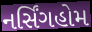
નર્સિંગહોમ